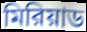
মিরিয়াড